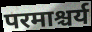
परमाश्चर्य